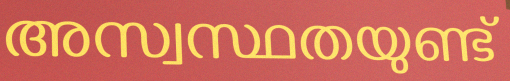
അസ്വസ്ഥതയുണ്ട്